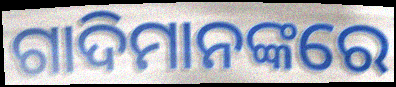
ଗାଦିମାନଙ୍କରେ